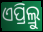
ଏପ୍ରିଲ୍ରୁ